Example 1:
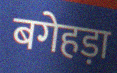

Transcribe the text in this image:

बगेहड़ा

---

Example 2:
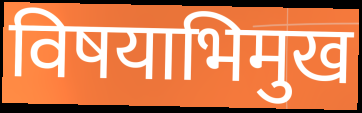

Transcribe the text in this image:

विषयाभिमुख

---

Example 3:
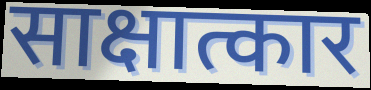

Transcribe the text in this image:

साक्षात्कार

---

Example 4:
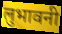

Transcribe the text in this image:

लुभावनी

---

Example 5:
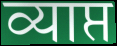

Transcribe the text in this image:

व्याप्त